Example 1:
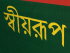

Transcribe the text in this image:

স্বীয়রূপ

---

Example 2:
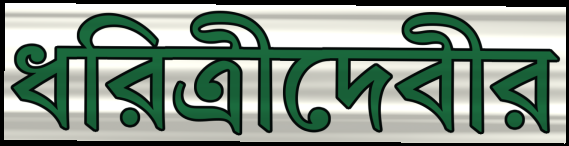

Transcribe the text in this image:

ধরিত্রীদেবীর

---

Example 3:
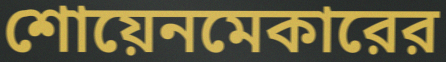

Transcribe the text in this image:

শোয়েনমেকারের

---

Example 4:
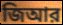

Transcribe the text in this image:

জিআর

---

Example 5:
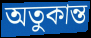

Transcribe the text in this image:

অতুকান্ত